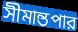
সীমান্তপার